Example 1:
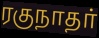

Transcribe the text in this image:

ரகுநாதர்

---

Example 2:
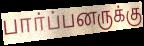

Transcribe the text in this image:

பார்ப்பனருக்கு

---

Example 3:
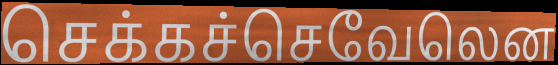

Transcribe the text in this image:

செக்கச்செவேலென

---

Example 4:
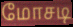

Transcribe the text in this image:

மோசடி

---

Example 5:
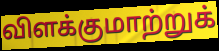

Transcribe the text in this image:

விளக்குமாற்றுக்